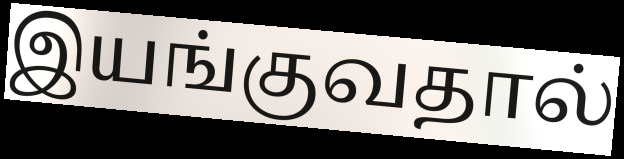
இயங்குவதால்